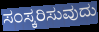
ಸಂಸ್ಕರಿಸುವುದು